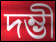
দম্ভী